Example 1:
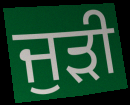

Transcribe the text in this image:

ਜੁੜੀ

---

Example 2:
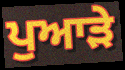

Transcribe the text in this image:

ਪੁਆੜੇ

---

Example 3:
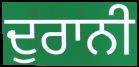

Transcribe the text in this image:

ਦੁਰਾਨੀ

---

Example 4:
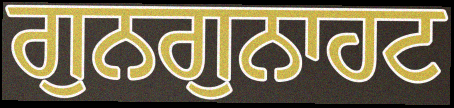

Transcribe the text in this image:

ਗੁਨਗੁਨਾਹਟ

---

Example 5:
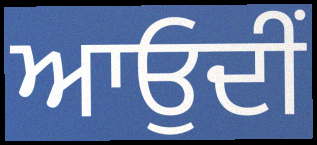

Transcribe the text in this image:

ਆਓੁਦੀਂ